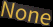
None